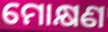
ମୋକ୍ଷଣ